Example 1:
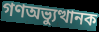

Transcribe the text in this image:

গণঅভ্যুত্থানক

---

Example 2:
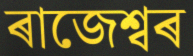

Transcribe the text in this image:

ৰাজেশ্বৰ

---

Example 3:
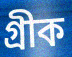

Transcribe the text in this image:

গ্ৰীক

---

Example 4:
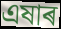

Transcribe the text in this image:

এষাৰ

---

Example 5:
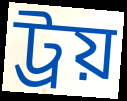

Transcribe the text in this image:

ট্ৰয়